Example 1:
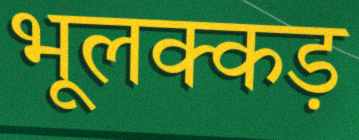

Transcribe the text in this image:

भूलक्कड़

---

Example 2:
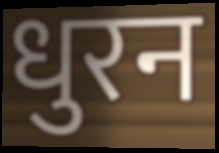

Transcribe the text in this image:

धुरन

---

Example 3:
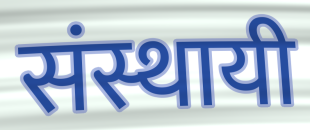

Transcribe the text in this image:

संस्थायी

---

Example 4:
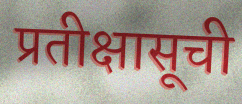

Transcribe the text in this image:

प्रतीक्षासूची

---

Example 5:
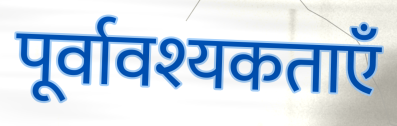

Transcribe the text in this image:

पूर्वावश्यकताएँ